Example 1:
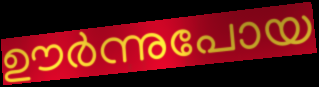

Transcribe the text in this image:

ഊർന്നുപോയ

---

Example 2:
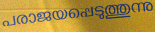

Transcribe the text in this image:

പരാജയപ്പെടുത്തുന്നു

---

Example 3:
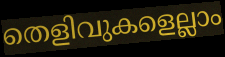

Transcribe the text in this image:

തെളിവുകളെല്ലാം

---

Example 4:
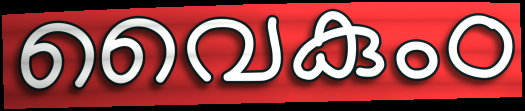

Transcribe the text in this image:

വൈകുംഠ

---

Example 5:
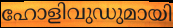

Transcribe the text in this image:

ഹോളിവുഡുമായി